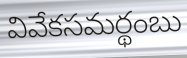
వివేకసమర్థంబు